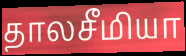
தாலசீமியா